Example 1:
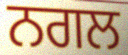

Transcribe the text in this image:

ਨਗਲ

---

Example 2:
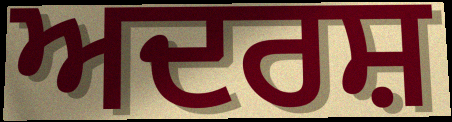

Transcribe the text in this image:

ਅਦਰਸ਼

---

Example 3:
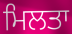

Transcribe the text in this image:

ਮਿਲਤਾ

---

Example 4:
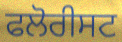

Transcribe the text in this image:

ਫਲੋਰੀਸਟ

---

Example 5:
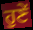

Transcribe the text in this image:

ਹੁਣੇਂ